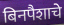
बिनपैशाचे